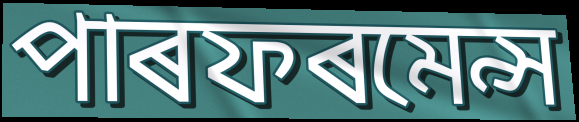
পাৰফৰমেন্স